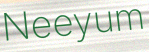
Neeyum